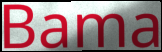
Bama